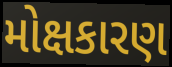
મોક્ષકારણ